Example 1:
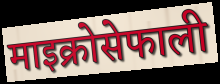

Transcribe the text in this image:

माइक्रोसेफाली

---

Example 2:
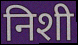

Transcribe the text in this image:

निशी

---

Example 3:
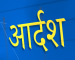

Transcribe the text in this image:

आर्दश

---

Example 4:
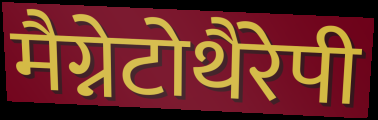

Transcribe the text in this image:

मैग्नेटोथैरेपी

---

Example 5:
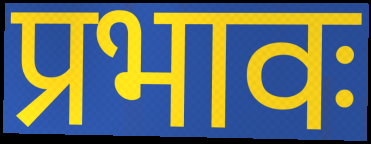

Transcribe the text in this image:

प्रभावः